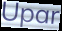
Upar